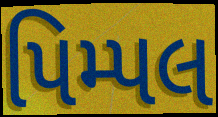
પિમ્પલ